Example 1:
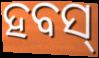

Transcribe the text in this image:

ହବସ୍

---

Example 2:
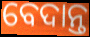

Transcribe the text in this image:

ବେଦାନ୍ତ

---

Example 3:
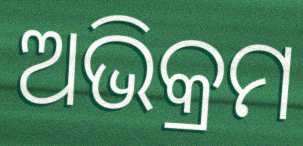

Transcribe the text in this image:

ଅଭିକ୍ରମ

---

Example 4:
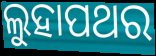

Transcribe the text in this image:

ଲୁହାପଥର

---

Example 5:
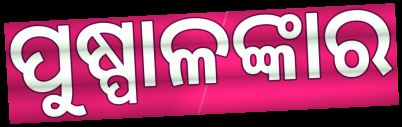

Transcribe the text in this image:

ପୁଷ୍ପାଳଙ୍କାର